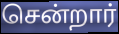
சென்றார்